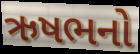
ઋષભનો